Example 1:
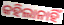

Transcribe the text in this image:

କହିଲାନାହିଁ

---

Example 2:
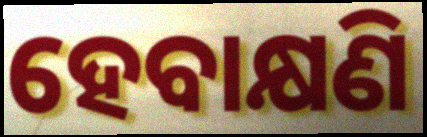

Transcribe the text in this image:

ହେବାକ୍ଷଣି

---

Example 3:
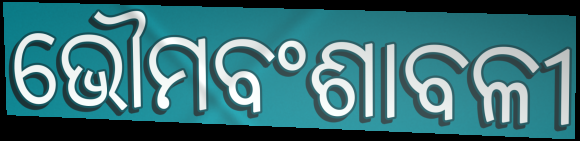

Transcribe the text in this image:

ଭୌମବଂଶାବଳୀ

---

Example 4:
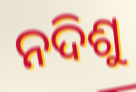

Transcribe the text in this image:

ନଦିଶୁ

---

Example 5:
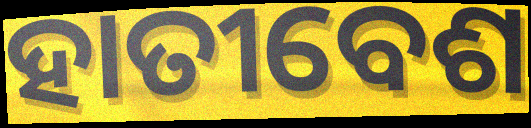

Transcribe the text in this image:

ହାତୀବେଶ